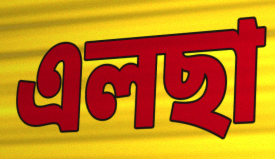
এলছা